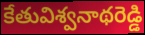
కేతువిశ్వనాథరెడ్డి